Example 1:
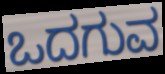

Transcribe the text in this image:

ಒದಗುವ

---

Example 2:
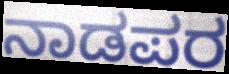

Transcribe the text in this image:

ನಾಡಪರ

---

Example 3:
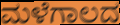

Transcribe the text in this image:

ಮಳೆಗಾಲದ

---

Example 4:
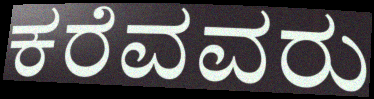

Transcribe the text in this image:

ಕರೆವವರು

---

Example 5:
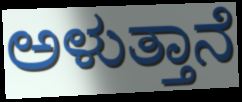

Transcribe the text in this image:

ಅಳುತ್ತಾನೆ